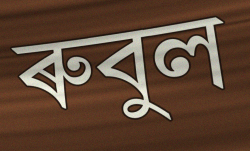
ৰুবুল